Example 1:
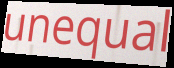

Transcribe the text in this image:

unequal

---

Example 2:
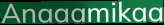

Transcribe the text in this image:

Anaaamikaa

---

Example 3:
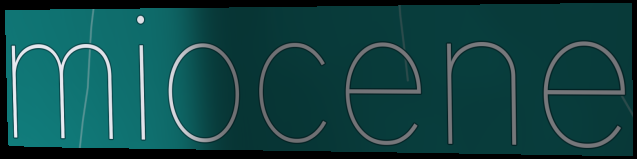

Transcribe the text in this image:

miocene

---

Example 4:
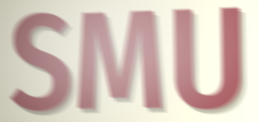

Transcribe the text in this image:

SMU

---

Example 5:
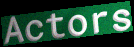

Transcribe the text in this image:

Actors